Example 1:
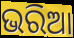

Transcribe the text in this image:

ଭରିଆ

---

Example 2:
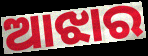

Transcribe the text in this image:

ଆଝାର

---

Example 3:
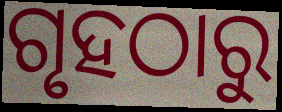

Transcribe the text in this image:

ଗୃହଠାରୁ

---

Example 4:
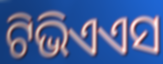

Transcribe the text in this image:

ଟିଭିଏଏସ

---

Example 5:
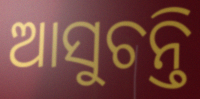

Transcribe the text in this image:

ଆସୁଚନ୍ତି